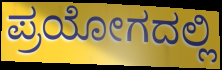
ಪ್ರಯೋಗದಲ್ಲಿ